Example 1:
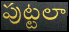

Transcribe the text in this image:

పుట్టలా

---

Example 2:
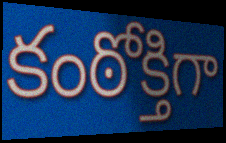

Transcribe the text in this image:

కంఠోక్తిగా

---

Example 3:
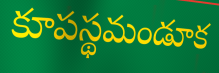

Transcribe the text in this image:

కూపస్థమండూక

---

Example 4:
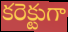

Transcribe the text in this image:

కరెక్టుగా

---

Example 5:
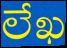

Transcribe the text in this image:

లేఖ